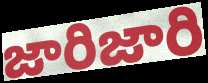
జారిజారి